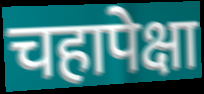
चहापेक्षा